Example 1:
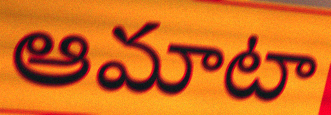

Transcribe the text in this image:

ఆమాటా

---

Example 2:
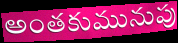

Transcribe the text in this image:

అంతకుమునుపు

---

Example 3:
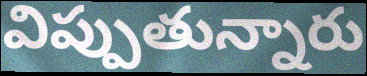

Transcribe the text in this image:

విప్పుతున్నారు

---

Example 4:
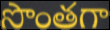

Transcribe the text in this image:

సొంతగా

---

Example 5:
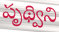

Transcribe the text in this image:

పృథ్విని